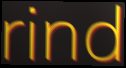
rind